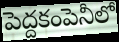
పెద్దకంపెనీలో